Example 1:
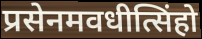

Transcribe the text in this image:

प्रसेनमवधीत्सिंहो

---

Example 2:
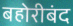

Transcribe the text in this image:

बहोरीबंद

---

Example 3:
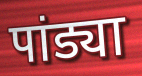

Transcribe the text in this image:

पांड्या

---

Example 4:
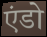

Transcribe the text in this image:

एंडो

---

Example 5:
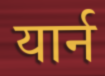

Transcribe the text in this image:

यार्न